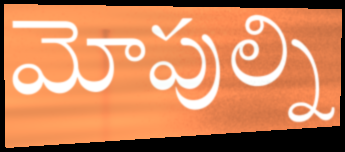
మోపుల్ని